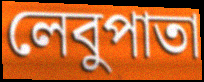
লেবুপাতা